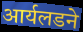
आर्यलडने